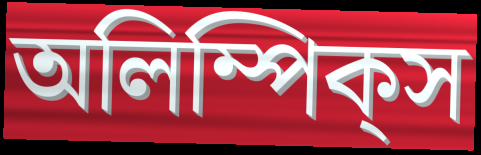
অলিম্পিক্‌স